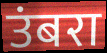
उंबरा